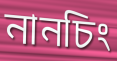
নানচিং